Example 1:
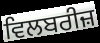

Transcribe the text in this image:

ਵਿਲਬਰੀਜ਼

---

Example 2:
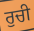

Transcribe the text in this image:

ਰੁਚੀ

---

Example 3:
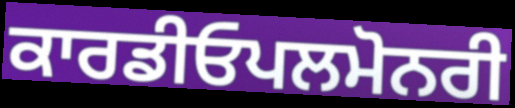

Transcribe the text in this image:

ਕਾਰਡੀਓਪਲਮੋਨਰੀ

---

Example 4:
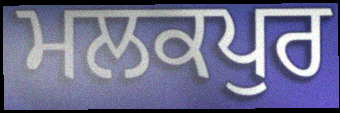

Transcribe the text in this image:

ਮਲਕਪੁਰ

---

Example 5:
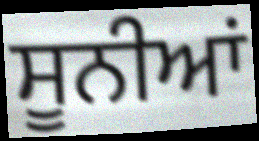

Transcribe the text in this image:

ਸੂਨੀਆਂ